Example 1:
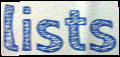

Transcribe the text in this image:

lists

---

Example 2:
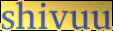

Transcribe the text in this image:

shivuu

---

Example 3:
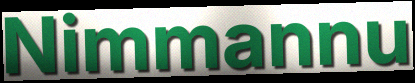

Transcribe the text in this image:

Nimmannu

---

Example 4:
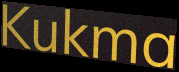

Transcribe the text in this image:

Kukma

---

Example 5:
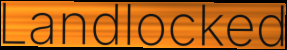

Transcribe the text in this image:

Landlocked